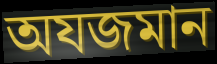
অযজমান